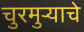
चुरमुऱ्याचे